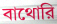
বাথোরি